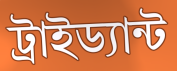
ট্রাইড্যান্ট